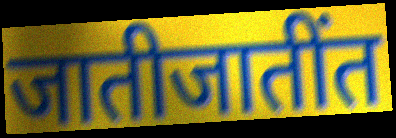
जातीजातींत